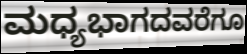
ಮಧ್ಯಭಾಗದವರೆಗೂ